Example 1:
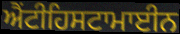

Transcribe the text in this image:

ਐਂਟੀਹਿਸਟਾਮਾਈਨ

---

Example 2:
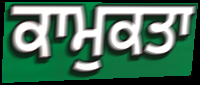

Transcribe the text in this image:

ਕਾਮੁਕਤਾ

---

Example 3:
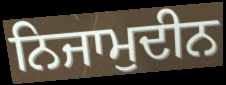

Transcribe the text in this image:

ਨਿਜਾਮੁਦੀਨ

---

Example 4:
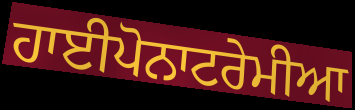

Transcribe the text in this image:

ਹਾਈਪੋਨਾਟਰੇਮੀਆ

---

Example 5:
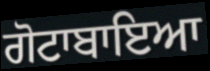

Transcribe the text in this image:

ਗੋਟਾਬਾਇਆ